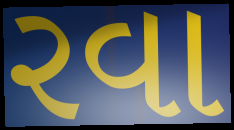
રવા